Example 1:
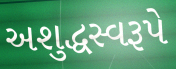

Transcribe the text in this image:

અશુદ્ધસ્વરૂપે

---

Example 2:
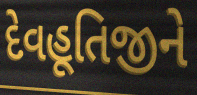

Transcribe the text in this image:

દેવહૂતિજીને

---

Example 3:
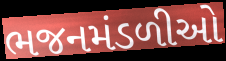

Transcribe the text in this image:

ભજનમંડળીઓ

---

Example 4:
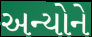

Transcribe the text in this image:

અન્યોને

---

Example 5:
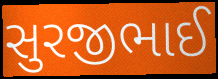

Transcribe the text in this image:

સુરજીભાઈ